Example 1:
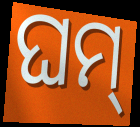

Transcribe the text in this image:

ଘମ୍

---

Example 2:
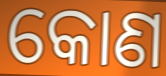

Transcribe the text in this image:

କୋଣ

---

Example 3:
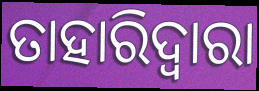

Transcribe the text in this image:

ତାହାରିଦ୍ଵାରା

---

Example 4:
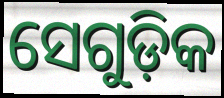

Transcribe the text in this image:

ସେଗୁଡ଼ିକ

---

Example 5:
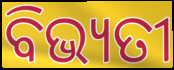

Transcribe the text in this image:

ବିଭ୍ୟତୀ